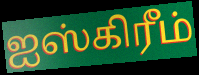
ஐஸ்கிரீம்